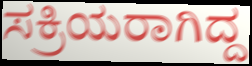
ಸಕ್ರಿಯರಾಗಿದ್ದ